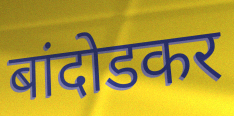
बांदोडकर